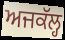
ਅਜਕੱਲ੍ਹ